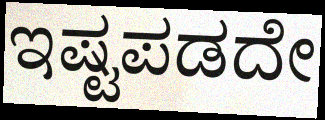
ಇಷ್ಟಪಡದೇ